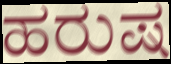
ಹರುಷ